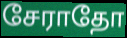
சேராதோ